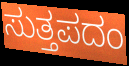
ಸುತ್ತಪದಂ